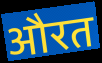
औरत